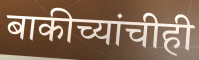
बाकीच्यांचीही